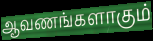
ஆவணங்களாகும்